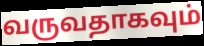
வருவதாகவும்